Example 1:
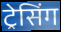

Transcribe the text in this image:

ट्रेसिंग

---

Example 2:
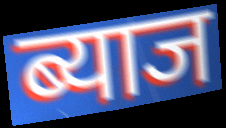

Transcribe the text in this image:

ब्‍याज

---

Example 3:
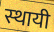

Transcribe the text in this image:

स्‍थायी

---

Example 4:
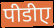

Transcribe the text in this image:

पीडीए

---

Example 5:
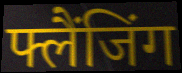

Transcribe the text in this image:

फ्लैंजिंग